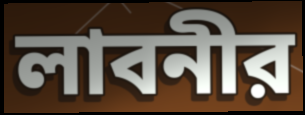
লাবনীর